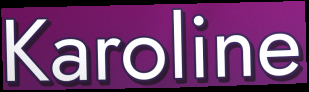
Karoline